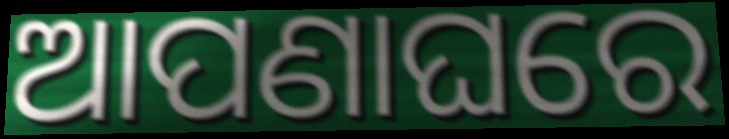
ଆପଣାଘରେ